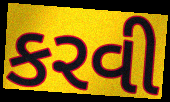
કરવી